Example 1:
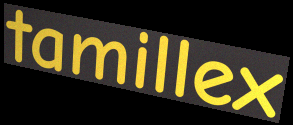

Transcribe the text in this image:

tamillex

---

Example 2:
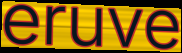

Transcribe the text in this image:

eruve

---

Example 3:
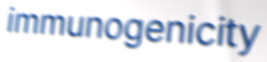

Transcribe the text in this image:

immunogenicity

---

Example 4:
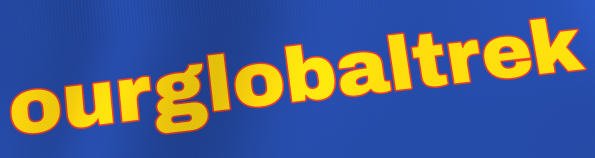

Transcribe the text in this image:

ourglobaltrek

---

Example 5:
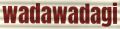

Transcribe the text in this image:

wadawadagi